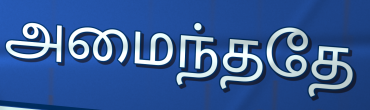
அமைந்ததே